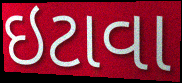
ઇટાવા